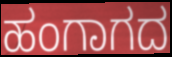
ಹಂಗಾಗದ